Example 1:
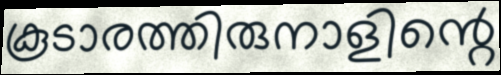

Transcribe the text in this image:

കൂടാരത്തിരുനാളിന്റെ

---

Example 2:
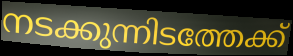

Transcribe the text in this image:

നടക്കുന്നിടത്തേക്ക്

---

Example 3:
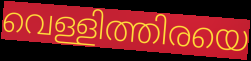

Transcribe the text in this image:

വെള്ളിത്തിരയെ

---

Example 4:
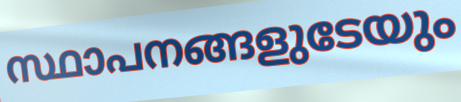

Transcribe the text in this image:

സ്ഥാപനങ്ങളുടേയും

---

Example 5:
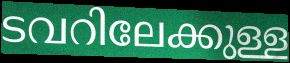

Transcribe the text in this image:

ടവറിലേക്കുള്ള